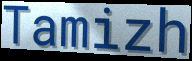
Tamizh